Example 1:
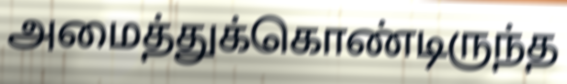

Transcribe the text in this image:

அமைத்துக்கொண்டிருந்த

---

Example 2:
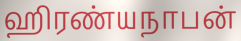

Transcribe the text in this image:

ஹிரண்யநாபன்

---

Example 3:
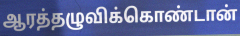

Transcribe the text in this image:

ஆரத்தழுவிக்கொண்டான்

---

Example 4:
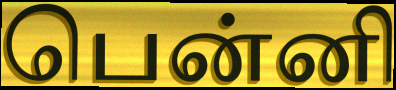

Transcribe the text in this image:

பென்னி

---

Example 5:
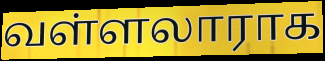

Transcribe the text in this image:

வள்ளலாராக